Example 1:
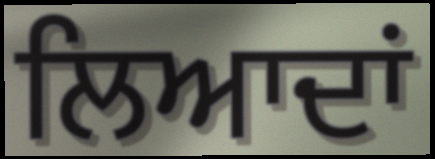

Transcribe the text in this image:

ਲਿਆਦਾਂ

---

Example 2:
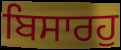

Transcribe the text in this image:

ਬਿਸਾਰਹੁ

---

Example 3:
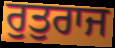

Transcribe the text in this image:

ਰੁਤੁਰਾਜ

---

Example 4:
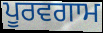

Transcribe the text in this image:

ਪੂਰਵਗਾਮ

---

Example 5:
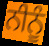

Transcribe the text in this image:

ਨੀਨੂੰ